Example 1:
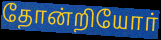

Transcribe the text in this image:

தோன்றியோர்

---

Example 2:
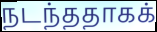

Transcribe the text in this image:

நடந்ததாகக்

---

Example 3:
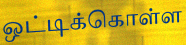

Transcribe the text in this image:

ஒட்டிக்கொள்ள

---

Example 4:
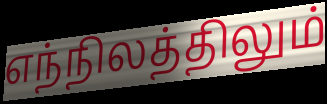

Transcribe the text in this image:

எந்நிலத்திலும்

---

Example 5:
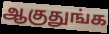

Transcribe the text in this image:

ஆகுதுங்க